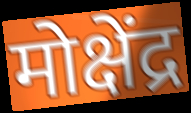
मोक्षेंद्र